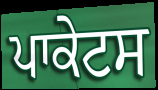
ਪਾਕੇਟਸ